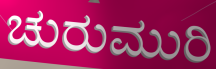
ಚುರುಮುರಿ